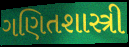
ગણિતશાસ્ત્રી